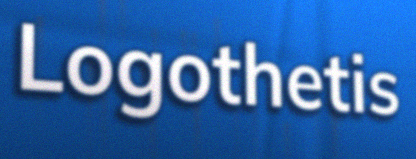
Logothetis